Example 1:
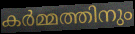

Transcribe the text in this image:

കർമ്മത്തിനും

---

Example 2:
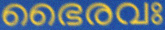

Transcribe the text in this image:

ഭൈരവഃ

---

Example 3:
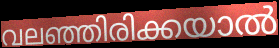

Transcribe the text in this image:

വലഞ്ഞിരിക്കയാൽ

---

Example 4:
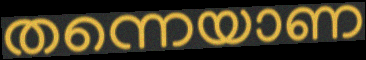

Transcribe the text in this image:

തന്നെയാണ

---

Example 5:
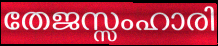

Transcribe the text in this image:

തേജസ്സംഹാരി